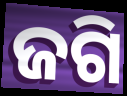
ଜଗି